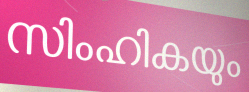
സിംഹികയും